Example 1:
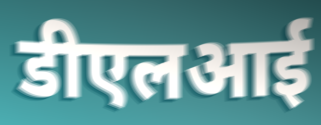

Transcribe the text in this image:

डीएलआई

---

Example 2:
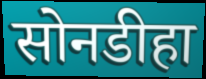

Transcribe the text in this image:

सोनडीहा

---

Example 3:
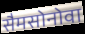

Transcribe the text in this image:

सैमसोनोवा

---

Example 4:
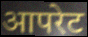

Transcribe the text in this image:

आपरेट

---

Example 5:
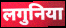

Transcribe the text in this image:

लगुनिया